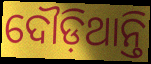
ଦୌଡ଼ିଥାନ୍ତି